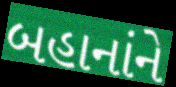
બહાનાંને